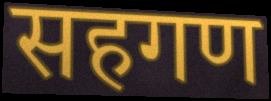
सहगण